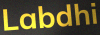
Labdhi